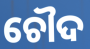
ଚୌଦ